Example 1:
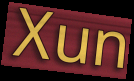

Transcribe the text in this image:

Xun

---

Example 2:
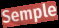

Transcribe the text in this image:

Semple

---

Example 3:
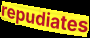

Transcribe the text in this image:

repudiates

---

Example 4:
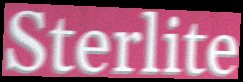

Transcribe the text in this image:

Sterlite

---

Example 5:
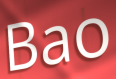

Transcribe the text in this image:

Bao